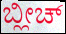
ಬ್ಲೀಚ್